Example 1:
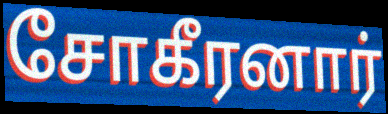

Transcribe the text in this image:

சோகீரனார்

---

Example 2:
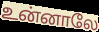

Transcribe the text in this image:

உன்னாலே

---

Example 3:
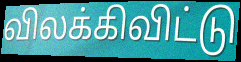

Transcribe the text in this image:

விலக்கிவிட்டு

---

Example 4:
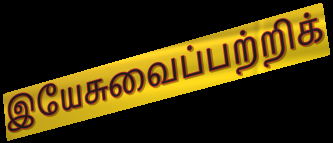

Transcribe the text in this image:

இயேசுவைப்பற்றிக்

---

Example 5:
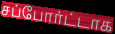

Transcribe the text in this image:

சப்போர்ட்டாக